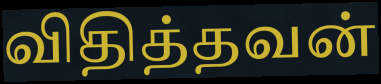
விதித்தவன்